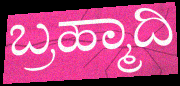
ಬ್ರಹ್ಮಾದಿ